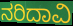
ನರಿದಾವಿ